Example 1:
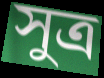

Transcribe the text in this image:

সুত্র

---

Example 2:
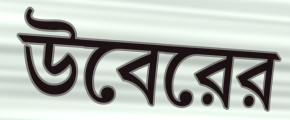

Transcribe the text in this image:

উবেরের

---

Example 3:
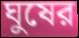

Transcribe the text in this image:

ঘুষের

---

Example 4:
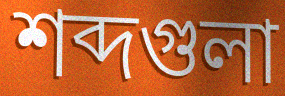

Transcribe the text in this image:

শব্দগুলা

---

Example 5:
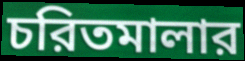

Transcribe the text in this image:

চরিতমালার